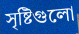
সৃষ্টিগুলো